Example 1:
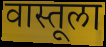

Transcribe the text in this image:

वास्तूला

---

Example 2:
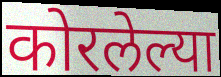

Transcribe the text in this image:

कोरलेल्या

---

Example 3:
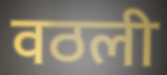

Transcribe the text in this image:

वठली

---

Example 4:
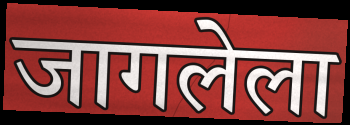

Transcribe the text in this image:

जागलेला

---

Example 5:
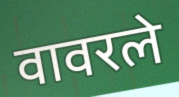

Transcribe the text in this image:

वावरले